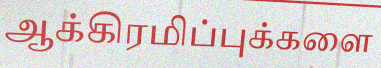
ஆக்கிரமிப்புக்களை